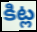
కిట్ల